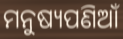
ମନୁଷ୍ୟପଣିଆଁ